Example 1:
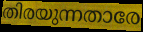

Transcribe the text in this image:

തിരയുന്നതാരേ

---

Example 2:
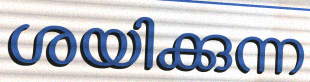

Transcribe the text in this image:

ശയിക്കുന്ന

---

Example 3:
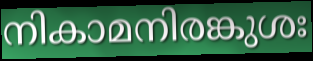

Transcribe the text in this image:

നികാമനിരങ്കുശഃ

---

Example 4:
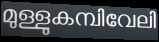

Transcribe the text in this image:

മുള്ളുകമ്പിവേലി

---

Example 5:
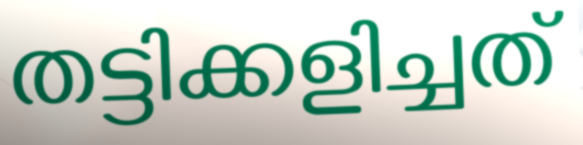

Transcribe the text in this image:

തട്ടിക്കളിച്ചത്